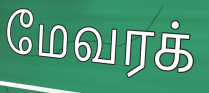
மேவரக்